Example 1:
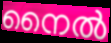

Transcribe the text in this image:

നൈൽ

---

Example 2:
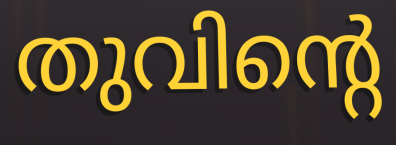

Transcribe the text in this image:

തുവിന്റെ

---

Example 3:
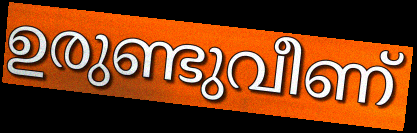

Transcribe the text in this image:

ഉരുണ്ടുവീണ്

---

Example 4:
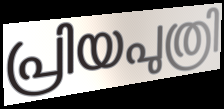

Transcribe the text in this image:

പ്രിയപുത്രി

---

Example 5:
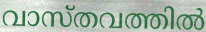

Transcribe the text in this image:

വാസ്തവത്തിൽ